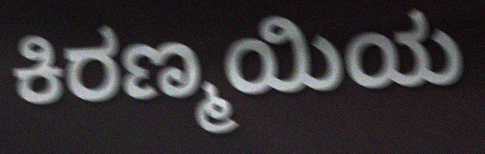
ಕಿರಣ್ಮಯಿಯ